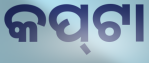
କପ୍‍ଟା